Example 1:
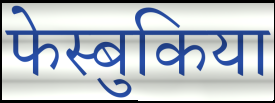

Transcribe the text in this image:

फेस्बुकिया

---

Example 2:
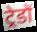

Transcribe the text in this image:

ट्रेडों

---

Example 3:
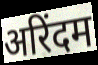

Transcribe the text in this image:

अरिंदम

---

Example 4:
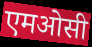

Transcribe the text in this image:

एमओसी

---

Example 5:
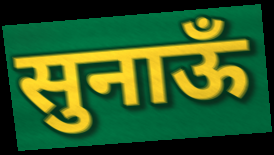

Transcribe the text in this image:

सुनाऊँ